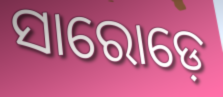
ସାରୋଡ଼େ